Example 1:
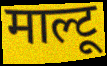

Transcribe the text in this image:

माल्टू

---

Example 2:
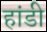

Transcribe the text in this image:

हांडी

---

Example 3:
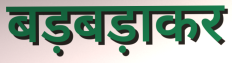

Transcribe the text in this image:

बड़बड़ाकर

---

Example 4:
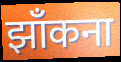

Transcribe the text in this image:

झाँकना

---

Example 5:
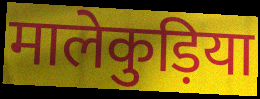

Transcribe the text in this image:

मालेकुड़िया